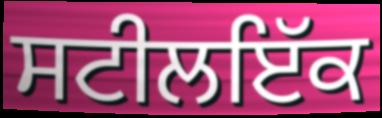
ਸਟੀਲਇੱਕ